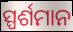
ସ୍ପର୍ଶମାନ